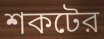
শকটের